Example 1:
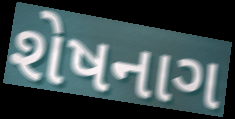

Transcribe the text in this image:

શેષનાગ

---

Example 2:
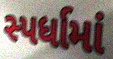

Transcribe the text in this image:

સ્પર્ધામાં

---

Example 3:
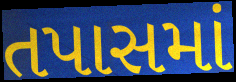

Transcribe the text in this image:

તપાસમાં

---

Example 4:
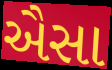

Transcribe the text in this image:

ઐસા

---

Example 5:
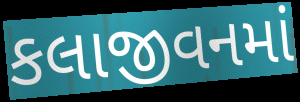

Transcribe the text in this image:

કલાજીવનમાં